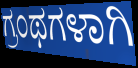
ಗ್ರಂಥಗಳಾಗಿ